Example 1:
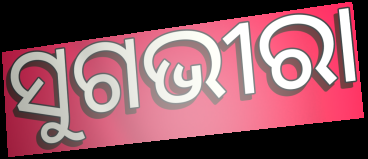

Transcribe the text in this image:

ସୁଗଭୀରା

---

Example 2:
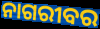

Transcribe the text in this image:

ନାଗରୀବର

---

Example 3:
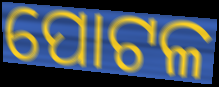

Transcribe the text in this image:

ପୋଟଳ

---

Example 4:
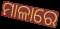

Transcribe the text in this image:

ମାଳାରେ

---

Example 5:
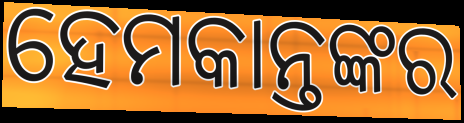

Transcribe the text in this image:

ହେମକାନ୍ତଙ୍କର